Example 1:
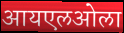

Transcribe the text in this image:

आयएलओला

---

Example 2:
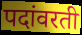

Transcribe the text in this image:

पदांवरती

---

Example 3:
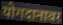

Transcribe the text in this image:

योगदानावर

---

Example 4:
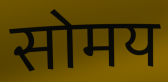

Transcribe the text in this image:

सोमय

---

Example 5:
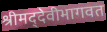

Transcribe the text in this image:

श्रीमद्‌देवीभागवत